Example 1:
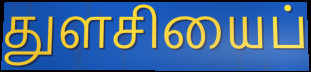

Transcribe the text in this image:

துளசியைப்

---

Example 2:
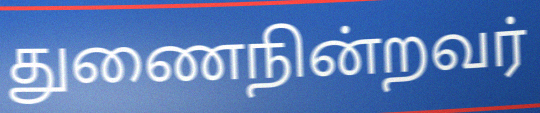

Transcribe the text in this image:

துணைநின்றவர்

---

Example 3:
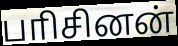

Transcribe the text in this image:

பரிசினன்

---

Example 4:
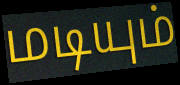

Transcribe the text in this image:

மடியும்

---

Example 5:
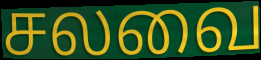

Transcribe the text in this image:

சலவை